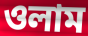
ওলাম